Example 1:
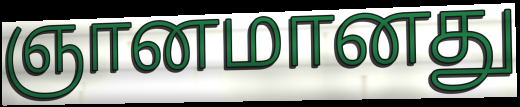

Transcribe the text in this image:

ஞானமானது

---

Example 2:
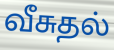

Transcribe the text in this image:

வீசுதல்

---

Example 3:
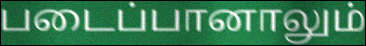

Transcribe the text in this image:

படைப்பானாலும்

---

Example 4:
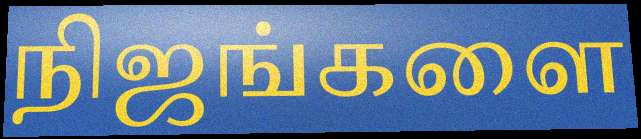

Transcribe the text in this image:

நிஜங்களை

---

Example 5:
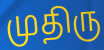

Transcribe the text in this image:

முதிரு